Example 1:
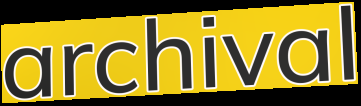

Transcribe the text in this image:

archival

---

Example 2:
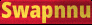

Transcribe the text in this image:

Swapnnu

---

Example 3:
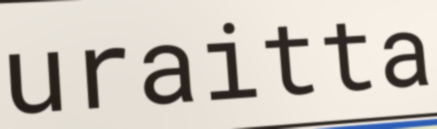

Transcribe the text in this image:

uraitta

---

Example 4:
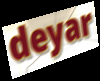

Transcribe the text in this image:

deyar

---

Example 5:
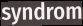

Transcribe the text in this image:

syndrom